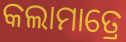
କଲାମାତ୍ରେ